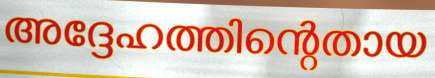
അദ്ദേഹത്തിന്റെതായ